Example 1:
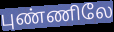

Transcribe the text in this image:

புண்ணிலே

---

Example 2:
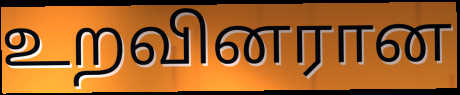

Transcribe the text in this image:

உறவினரான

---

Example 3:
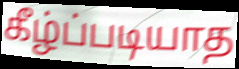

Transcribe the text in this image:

கீழ்ப்படியாத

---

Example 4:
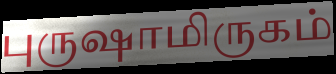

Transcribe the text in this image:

புருஷாமிருகம்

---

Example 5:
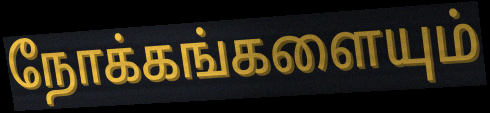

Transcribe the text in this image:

நோக்கங்களையும்